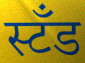
स्टँड